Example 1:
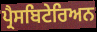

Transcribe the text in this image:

ਪ੍ਰੈਸਬਿਟੇਰਿਅਨ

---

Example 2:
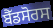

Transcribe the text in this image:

ਬੈੱਡਸੋਰਸ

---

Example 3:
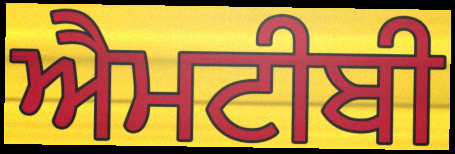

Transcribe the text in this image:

ਐਮਟੀਬੀ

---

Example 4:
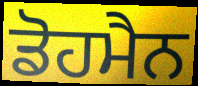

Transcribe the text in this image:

ਡੋਹਮੈਨ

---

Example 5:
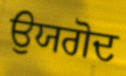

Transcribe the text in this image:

ਉਯਗੋਦ